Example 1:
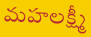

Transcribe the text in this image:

మహలక్ష్మీ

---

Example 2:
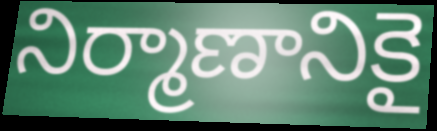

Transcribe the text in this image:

నిర్మాణానికై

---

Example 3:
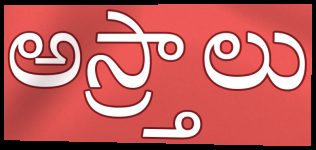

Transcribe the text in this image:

అస్ర్తాలు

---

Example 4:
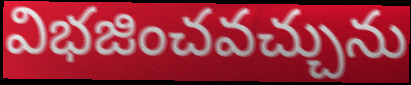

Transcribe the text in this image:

విభజించవచ్చును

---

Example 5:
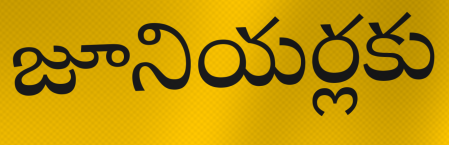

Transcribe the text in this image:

జూనియర్లకు